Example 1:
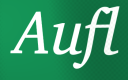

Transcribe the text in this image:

Aufl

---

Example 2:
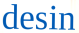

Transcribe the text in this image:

desin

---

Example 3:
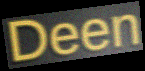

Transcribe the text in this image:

Deen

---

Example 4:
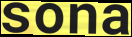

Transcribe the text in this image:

sona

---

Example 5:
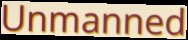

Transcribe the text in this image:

Unmanned